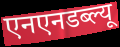
एनएनडब्ल्यू